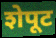
शेपूट